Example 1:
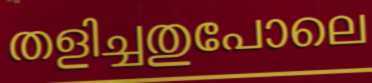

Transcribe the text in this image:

തളിച്ചതുപോലെ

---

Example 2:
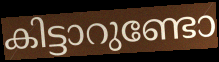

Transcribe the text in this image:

കിട്ടാറുണ്ടോ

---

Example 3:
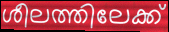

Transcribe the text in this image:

ശീലത്തിലേക്ക്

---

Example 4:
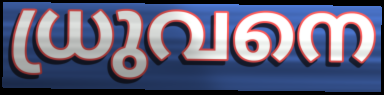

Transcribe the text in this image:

ധ്രുവനെ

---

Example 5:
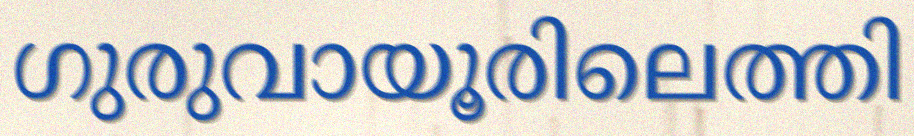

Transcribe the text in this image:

ഗുരുവായൂരിലെത്തി